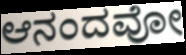
ಆನಂದವೋ